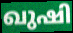
ഖുഷി